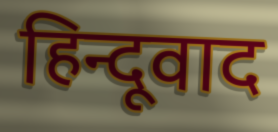
हिन्दूवाद